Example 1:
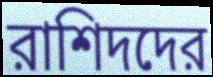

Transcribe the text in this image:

রাশিদদের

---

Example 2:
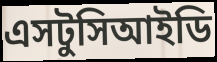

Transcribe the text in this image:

এসটুসিআইডি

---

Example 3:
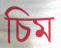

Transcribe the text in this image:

চিম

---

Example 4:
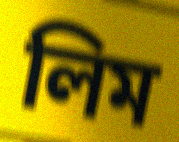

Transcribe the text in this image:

লিম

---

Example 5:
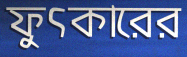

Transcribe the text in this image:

ফুৎকারের